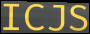
ICJS